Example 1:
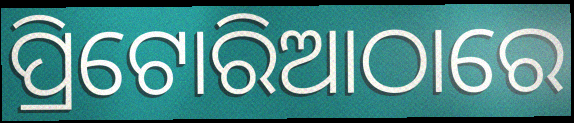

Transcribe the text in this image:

ପ୍ରିଟୋରିଆଠାରେ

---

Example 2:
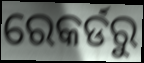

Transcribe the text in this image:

ରେକର୍ଡରୁ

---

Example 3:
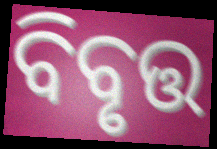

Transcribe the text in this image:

ବିବୃତ୍ତ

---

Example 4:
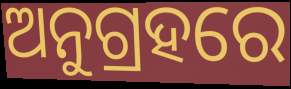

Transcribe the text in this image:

ଅନୁଗ୍ରହରେ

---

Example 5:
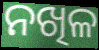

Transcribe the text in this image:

ନଖିଳ